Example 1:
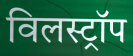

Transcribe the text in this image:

विलस्ट्रॉप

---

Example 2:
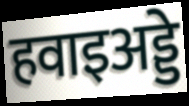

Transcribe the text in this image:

हवाइअड्डे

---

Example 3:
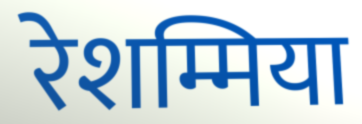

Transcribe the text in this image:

रेशम्मिया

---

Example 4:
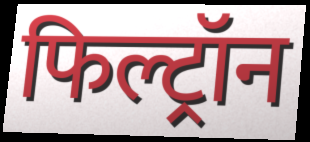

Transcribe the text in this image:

फिल्ट्रॉन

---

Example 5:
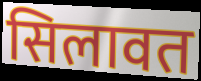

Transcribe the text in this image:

सिलावत